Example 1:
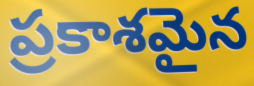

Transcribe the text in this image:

ప్రకాశమైన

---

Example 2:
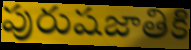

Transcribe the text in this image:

పురుషజాతికి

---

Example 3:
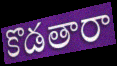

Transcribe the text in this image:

కొడతారా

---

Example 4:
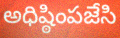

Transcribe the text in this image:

అధిష్ఠింపజేసి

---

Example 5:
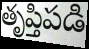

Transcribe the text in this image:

తృప్తిపడి